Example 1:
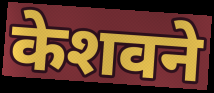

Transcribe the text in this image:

केशवने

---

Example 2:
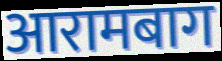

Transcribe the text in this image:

आरामबाग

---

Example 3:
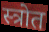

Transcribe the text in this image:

स्त्रोत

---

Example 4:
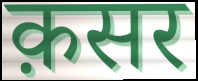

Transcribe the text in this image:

क़सर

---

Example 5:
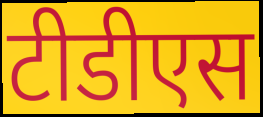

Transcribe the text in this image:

टीडीएस